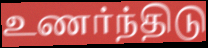
உணர்ந்திடு